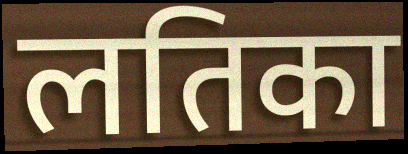
लतिका